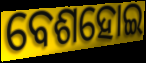
ବେଶହୋଇ